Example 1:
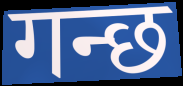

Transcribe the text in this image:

गन्छ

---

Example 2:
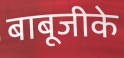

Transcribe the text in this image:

बाबूजीके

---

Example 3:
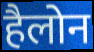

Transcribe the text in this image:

हैलोन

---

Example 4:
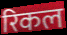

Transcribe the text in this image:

रिकल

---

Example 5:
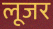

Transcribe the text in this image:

लूजर